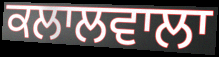
ਕਲਾਲਵਾਲਾ